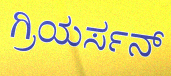
ಗ್ರಿಯರ್ಸನ್